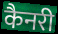
कैनरी